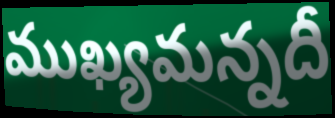
ముఖ్యమన్నదీ